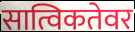
सात्विकतेवर